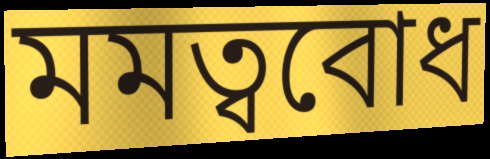
মমত্ববোধ